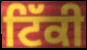
ਟਿੱਕੀ